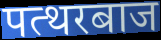
पत्थरबाज